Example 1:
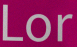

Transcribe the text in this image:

Lor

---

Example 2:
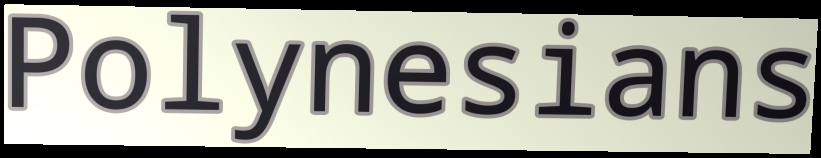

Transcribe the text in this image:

Polynesians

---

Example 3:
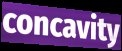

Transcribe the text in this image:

concavity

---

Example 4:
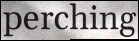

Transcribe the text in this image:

perching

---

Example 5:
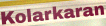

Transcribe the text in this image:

Kolarkaran